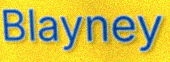
Blayney